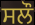
ਸਲੌ